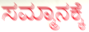
ಸಮ್ಮಾನಕ್ಕೆ